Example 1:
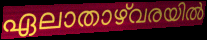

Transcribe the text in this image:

ഏലാതാഴ്‌വരയിൽ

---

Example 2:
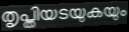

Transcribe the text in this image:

തൃപ്തിയടയുകയും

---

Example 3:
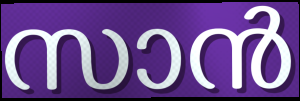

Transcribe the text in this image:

സാൻ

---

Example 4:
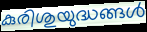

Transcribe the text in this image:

കുരിശുയുദ്ധങ്ങൾ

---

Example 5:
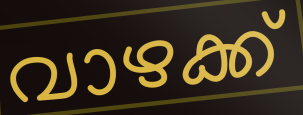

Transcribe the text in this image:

വാഴക്ക്